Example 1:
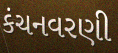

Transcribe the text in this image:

કંચનવરણી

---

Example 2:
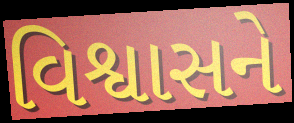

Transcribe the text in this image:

વિશ્વાસને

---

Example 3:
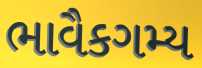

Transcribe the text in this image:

ભાવૈકગમ્ય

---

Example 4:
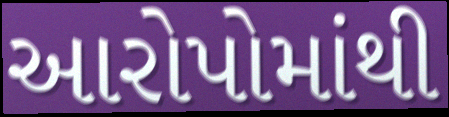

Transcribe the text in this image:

આરોપોમાંથી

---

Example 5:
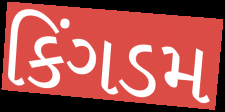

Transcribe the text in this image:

કિંગડમ